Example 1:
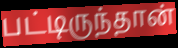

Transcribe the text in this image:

பட்டிருந்தான்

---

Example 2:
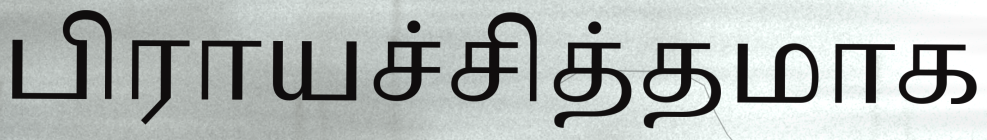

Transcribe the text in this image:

பிராயச்சித்தமாக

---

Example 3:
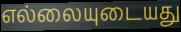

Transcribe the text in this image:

எல்லையுடையது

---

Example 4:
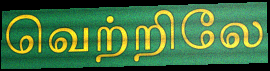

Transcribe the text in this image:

வெற்றிலே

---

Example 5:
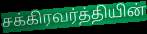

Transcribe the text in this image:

சக்கிரவர்த்தியின்